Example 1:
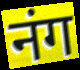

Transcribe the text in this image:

नंग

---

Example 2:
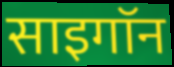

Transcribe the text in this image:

साइगॉन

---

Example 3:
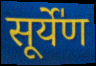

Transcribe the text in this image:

सूर्ये॑ण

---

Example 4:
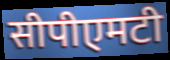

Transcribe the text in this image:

सीपीएमटी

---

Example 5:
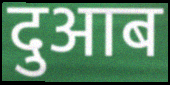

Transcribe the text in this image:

दुआब